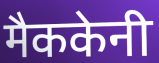
मैककेनी